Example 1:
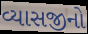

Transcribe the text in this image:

વ્યાસજીનો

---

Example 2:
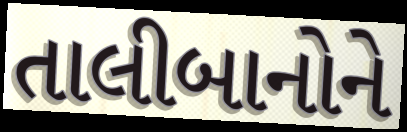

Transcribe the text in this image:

તાલીબાનોને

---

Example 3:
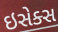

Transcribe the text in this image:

ઇસેક્સ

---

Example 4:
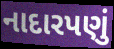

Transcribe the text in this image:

નાદારપણું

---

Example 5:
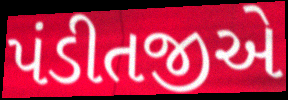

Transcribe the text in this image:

પંડીતજીએ